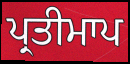
ਪ੍ਰਤੀਮਾਪ